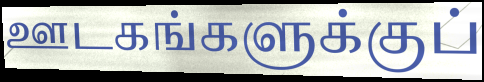
ஊடகங்களுக்குப்